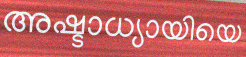
അഷ്ടാധ്യായിയെ